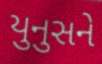
યુનુસને